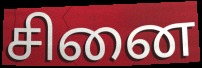
சினை